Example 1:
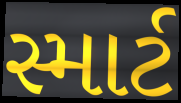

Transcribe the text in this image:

સ્માર્ટ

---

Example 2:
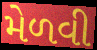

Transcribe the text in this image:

મેળવી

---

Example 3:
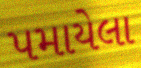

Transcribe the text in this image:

પમાયેલા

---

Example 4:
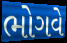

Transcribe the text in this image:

ભોગવે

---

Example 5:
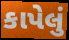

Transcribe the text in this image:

કાપેલું